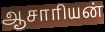
ஆசாரியன்